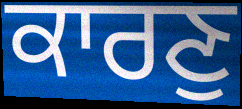
ਕਾਰਣੁ